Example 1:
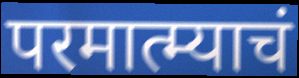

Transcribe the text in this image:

परमात्म्याचं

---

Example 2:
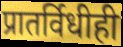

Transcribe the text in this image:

प्रातर्विधीही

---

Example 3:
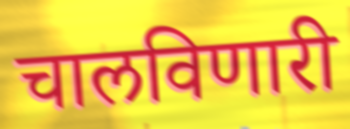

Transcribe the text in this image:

चालविणारी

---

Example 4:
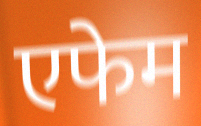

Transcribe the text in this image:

एफेम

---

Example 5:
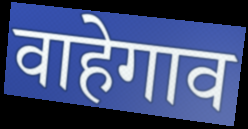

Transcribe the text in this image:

वाहेगाव